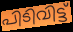
പിടിവിട്ട്